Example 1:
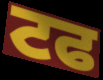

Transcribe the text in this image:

ਟਫ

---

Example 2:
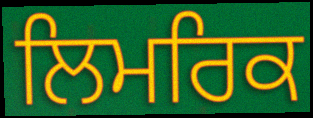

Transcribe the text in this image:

ਲਿਮਰਿਕ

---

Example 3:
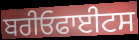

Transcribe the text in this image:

ਬਰੀਓਫਾਈਟਸ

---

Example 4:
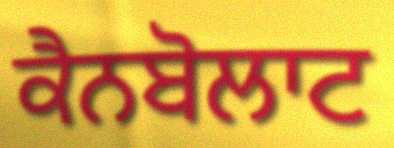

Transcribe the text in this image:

ਕੈਨਬੋਲਾਟ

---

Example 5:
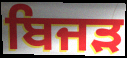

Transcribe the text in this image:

ਬਿਜੜ